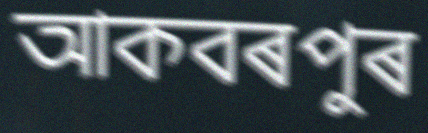
আকবৰপুৰ